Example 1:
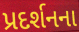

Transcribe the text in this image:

પ્રદર્શનના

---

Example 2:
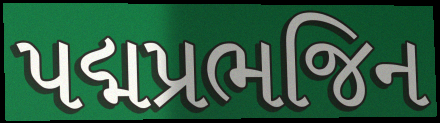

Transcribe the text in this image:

પદ્મપ્રભજિન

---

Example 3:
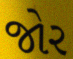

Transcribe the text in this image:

જોર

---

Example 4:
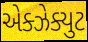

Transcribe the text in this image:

એક્ઝેક્યુટ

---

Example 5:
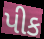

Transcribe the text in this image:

પીક